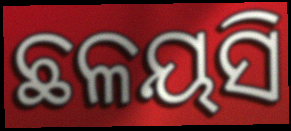
ଛଳୟସି